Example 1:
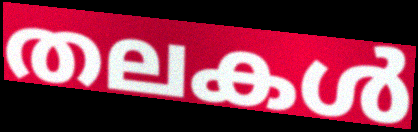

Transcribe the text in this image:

തലകൾ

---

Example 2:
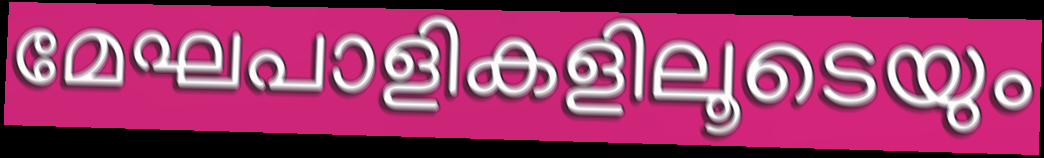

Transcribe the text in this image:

മേഘപാളികളിലൂടെയും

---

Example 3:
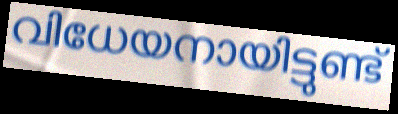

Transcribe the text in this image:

വിധേയനായിട്ടുണ്ട്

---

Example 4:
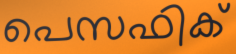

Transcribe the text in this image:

പെസഫിക്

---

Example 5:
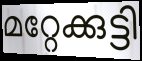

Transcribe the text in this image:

മറ്റേക്കുട്ടി